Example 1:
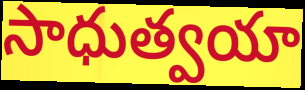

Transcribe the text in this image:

సాధుత్వయా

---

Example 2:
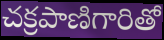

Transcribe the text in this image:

చక్రపాణిగారితో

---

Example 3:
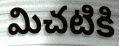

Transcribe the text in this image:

మిచటికి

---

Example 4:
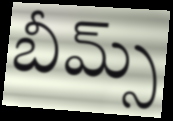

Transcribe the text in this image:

బీమ్స్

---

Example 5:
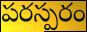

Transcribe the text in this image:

పరస్పరం